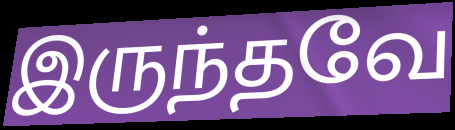
இருந்தவே